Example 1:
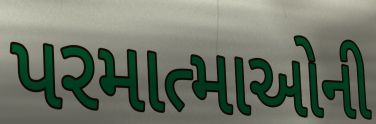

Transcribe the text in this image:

પરમાત્માઓની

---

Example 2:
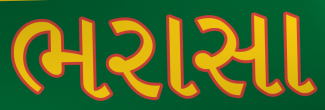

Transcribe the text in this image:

ભરાસા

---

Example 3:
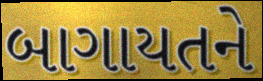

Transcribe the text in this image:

બાગાયતને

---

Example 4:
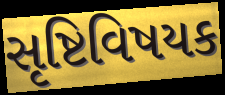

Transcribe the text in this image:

સૃષ્ટિવિષયક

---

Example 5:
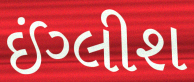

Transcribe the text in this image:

ઈંગ્લીશ